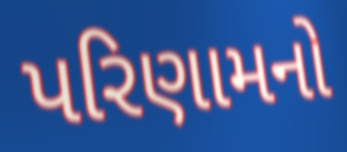
પરિણામનો